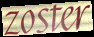
zoster